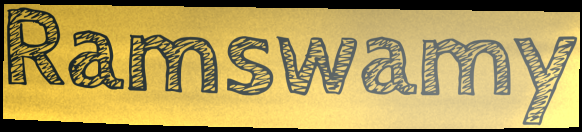
Ramswamy